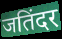
जतिंदर